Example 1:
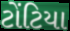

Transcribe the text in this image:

ટોંટિયા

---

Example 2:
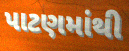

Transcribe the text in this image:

પાટણમાંથી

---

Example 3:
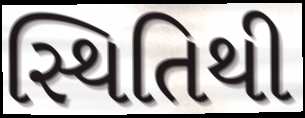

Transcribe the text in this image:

સ્થિતિથી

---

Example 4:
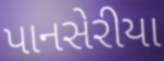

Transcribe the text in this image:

પાનસેરીયા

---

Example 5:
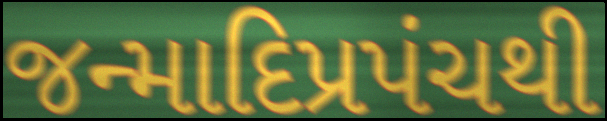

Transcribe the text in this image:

જન્માદિપ્રપંચથી